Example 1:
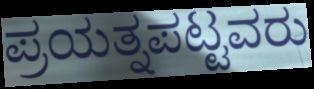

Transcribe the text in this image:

ಪ್ರಯತ್ನಪಟ್ಟವರು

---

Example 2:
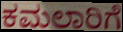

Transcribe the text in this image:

ಕಮಲಾರಿಗೆ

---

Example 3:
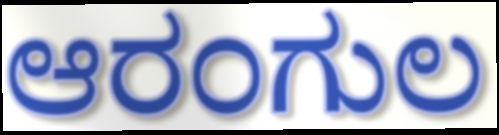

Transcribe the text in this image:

ಆರಂಗುಲ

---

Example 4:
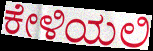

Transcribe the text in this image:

ಕೇಳಿಯಲಿ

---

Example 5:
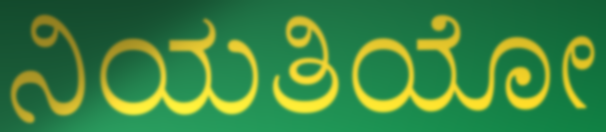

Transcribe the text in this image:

ನಿಯತಿಯೋ